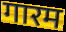
गारम